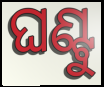
ଘଣ୍ଟୁ